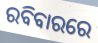
ରବିବାରରେ